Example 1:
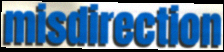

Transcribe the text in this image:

misdirection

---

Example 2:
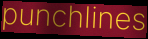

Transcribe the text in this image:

punchlines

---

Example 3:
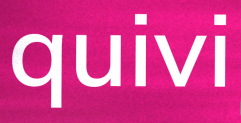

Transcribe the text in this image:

quivi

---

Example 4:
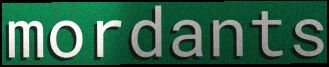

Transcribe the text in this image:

mordants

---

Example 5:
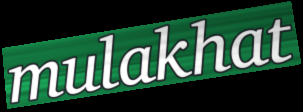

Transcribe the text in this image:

mulakhat